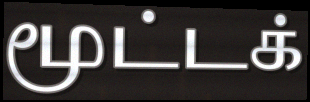
மூட்டக்